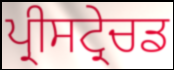
ਪ੍ਰੀਸਟ੍ਰੇਚਡ